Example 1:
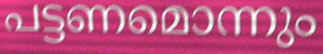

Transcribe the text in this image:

പട്ടണമൊന്നും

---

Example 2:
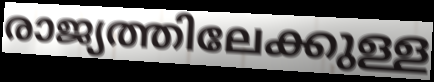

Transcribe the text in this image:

രാജ്യത്തിലേക്കുള്ള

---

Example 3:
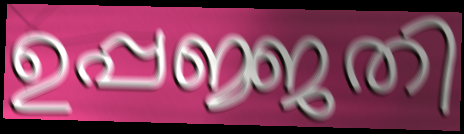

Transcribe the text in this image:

ഉപ്പജ്ജതി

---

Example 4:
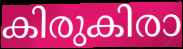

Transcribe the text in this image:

കിരുകിരാ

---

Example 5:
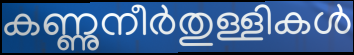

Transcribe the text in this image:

കണ്ണുനീർതുള്ളികൾ